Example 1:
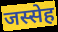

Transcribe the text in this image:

जस्सेह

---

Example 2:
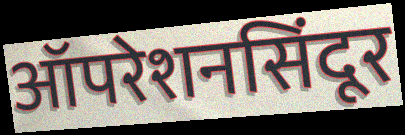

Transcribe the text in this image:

ऑपरेशनसिंदूर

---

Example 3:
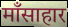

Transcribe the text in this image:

माँसाहार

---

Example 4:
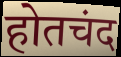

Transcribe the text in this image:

होतचंद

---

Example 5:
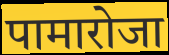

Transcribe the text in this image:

पामारोजा